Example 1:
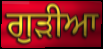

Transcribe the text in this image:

ਗੁਡ਼ੀਆ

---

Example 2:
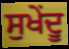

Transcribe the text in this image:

ਸੁਖੇਂਦੂ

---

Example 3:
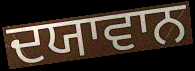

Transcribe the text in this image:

ਦਯਾਵਾਨ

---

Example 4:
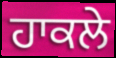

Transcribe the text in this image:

ਹਾਕਲੇ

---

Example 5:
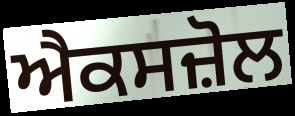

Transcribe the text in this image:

ਐਕਸਜ਼ੋਲ